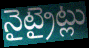
నైట్రైట్లు